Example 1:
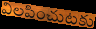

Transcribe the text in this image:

విలపించుటకు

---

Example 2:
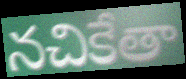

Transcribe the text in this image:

నచికేతా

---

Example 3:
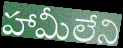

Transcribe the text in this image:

హామీలేని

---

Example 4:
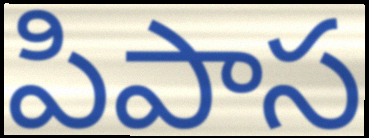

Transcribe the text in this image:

పిపాస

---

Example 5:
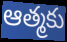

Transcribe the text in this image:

ఆత్మకు